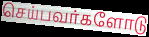
செய்பவர்களோடு